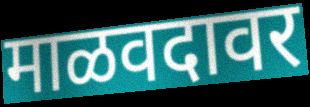
माळवदावर